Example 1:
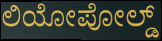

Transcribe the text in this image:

ಲಿಯೋಪೋಲ್ಡ್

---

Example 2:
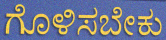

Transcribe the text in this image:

ಗೊಳಿಸಬೇಕು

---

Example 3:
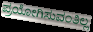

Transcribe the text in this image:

ಪ್ರಯೋಗಿಸುವಂತಿಲ್ಲ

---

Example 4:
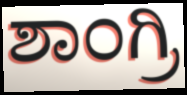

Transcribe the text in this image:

ಶಾಂಗ್ರಿ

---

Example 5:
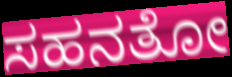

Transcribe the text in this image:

ಸಹನತೋ